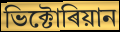
ভিক্টোৰিয়ান